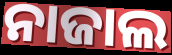
ନାଜାଲ